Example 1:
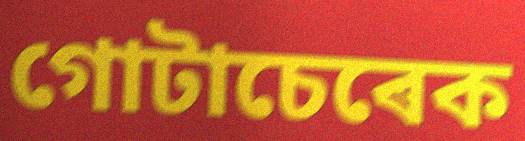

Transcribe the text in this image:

গোটাচেৰেক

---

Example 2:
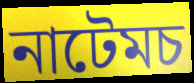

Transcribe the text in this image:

নাটেমচ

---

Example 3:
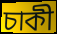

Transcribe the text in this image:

চাকী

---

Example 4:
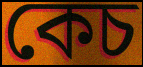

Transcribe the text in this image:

কেচ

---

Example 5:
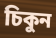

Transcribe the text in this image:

চিকুন